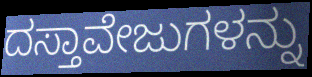
ದಸ್ತಾವೇಜುಗಳನ್ನು